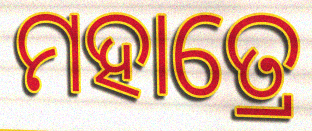
ମହାତ୍ରେ